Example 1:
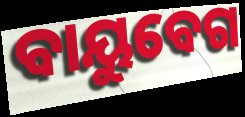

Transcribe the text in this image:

ବାୟୁବେଗ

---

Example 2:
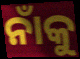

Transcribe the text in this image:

ନାଁକୁ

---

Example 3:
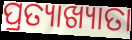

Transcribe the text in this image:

ପ୍ରତ୍ୟାଖ୍ୟାତା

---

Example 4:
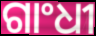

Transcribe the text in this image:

ଗାଂଧୀ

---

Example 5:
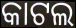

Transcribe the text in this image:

କାଟଲ